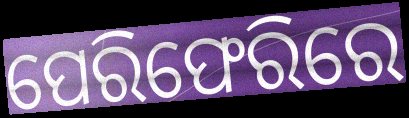
ପେରିଫେରିରେ